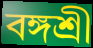
বঙ্গশ্রী